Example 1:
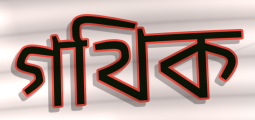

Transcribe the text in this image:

গথিক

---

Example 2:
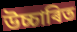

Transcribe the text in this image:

উচ্চাৰিত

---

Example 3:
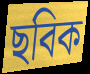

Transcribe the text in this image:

ছবিক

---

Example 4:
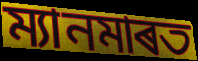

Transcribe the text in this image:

ম্যানমাৰত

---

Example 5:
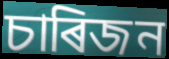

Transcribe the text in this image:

চাৰিজন